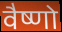
वैष्णो